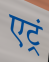
एट्रं